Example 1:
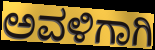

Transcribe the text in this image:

ಅವಳಿಗಾಗಿ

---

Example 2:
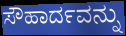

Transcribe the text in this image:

ಸೌಹಾರ್ದವನ್ನು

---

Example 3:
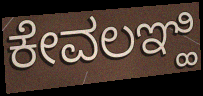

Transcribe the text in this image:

ಕೇವಲಞ್ಹಿ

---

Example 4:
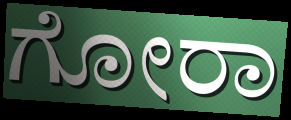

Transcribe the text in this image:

ಗೋರಾ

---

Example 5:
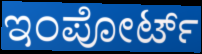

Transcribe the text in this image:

ಇಂಪೋರ್ಟ್